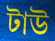
টাউ